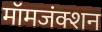
मॉमजंक्शन